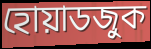
হোয়াডজুক